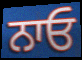
ਨਾਓ